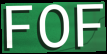
FOF